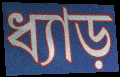
ধ্যাড়